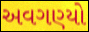
અવગણ્યો